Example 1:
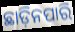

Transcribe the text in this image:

ଛାଡ଼ିନପାରି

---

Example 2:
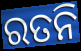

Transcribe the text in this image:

ରତନି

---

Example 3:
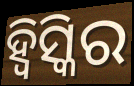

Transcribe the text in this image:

ହ୍ୱିସ୍କିର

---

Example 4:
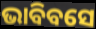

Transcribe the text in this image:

ଭାବିବସେ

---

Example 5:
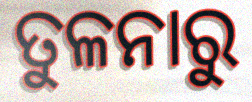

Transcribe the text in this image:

ତୁଳନାରୁ